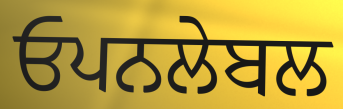
ਓਪਨਲੇਬਲ